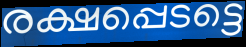
രക്ഷപ്പെടട്ടെ